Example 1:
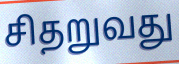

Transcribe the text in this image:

சிதறுவது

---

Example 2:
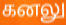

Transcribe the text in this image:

கனலு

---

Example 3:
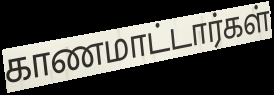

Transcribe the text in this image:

காணமாட்டார்கள்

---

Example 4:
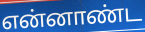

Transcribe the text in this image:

என்னாண்ட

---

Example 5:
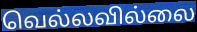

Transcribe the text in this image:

வெல்லவில்லை